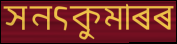
সনৎকুমাৰৰ